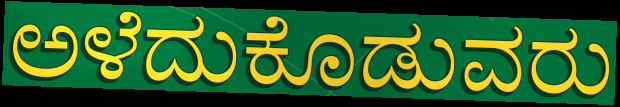
ಅಳೆದುಕೊಡುವರು